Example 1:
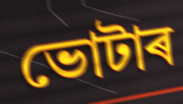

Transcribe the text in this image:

ভোটাৰ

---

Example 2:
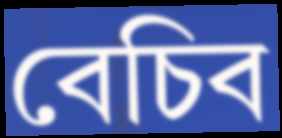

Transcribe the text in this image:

বেচিব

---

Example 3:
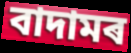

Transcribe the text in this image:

বাদামৰ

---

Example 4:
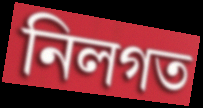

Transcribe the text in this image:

নিলগত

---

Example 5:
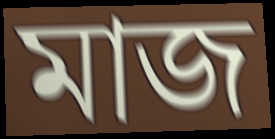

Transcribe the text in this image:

মাজ